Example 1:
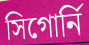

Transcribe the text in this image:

সিগোর্নি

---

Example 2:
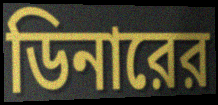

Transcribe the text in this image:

ডিনারের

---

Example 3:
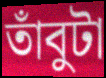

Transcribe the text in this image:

তাঁবুটা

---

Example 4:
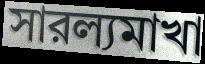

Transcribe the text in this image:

সারল্যমাখা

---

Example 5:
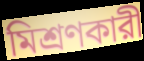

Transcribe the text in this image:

মিশ্রণকারী